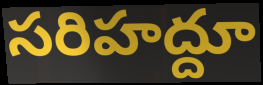
సరిహద్దూ